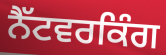
ਨੈੱਟਵਰਕਿੰਗ